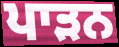
ਪਾੜਨ